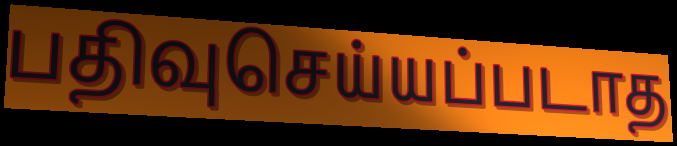
பதிவுசெய்யப்படாத